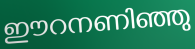
ഈറനണിഞ്ഞു